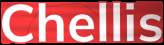
Chellis